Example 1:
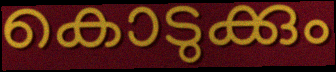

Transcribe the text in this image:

കൊടുക്കും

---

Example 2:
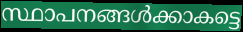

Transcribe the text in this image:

സ്ഥാപനങ്ങൾക്കാകട്ടെ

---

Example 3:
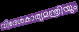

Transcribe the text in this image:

വിദേശകാര്യമന്ത്രിയും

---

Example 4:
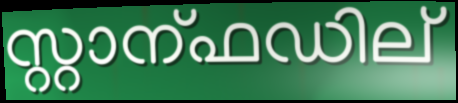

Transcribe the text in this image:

സ്റ്റാന്ഫഡില്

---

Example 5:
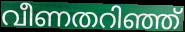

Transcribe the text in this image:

വീണതറിഞ്ഞ്